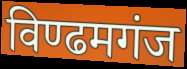
विण्ढमगंज